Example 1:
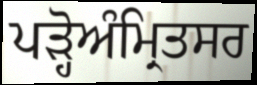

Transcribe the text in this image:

ਪੜ੍ਹੋਅੰਮ੍ਰਿਤਸਰ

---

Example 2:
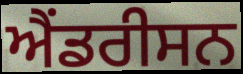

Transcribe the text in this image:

ਐਂਡਰੀਸਨ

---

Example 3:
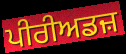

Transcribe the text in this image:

ਪੀਰੀਅਡਜ਼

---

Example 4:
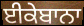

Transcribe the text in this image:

ਈਕੇਬਾਨਾ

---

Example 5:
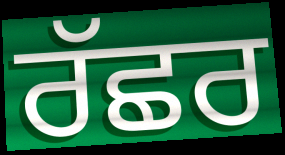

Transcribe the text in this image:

ਰੱਛਰ